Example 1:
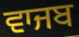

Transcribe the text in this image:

ਵਾਜਬ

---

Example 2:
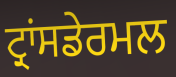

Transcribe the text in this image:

ਟ੍ਰਾਂਸਡੇਰਮਲ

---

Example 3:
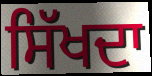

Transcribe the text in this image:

ਸਿੱਖਦਾ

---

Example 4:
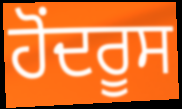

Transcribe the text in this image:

ਹੋਂਦਰੂਸ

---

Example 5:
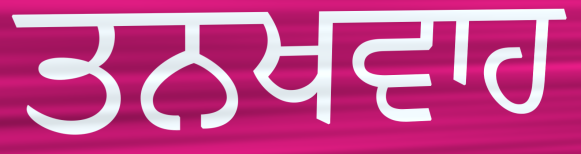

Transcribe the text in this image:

ਤਨਖਵਾਹ